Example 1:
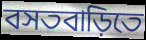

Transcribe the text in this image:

বসতবাড়িতে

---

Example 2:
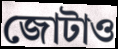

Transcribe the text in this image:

জোটাও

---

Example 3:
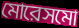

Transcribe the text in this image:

মোরেসমো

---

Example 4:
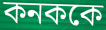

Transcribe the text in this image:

কনককে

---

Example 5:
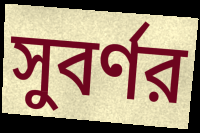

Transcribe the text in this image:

সুবর্ণর